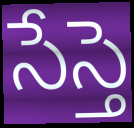
సేస్తె